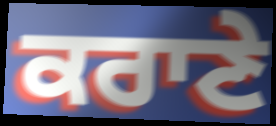
ਕਰਾਣੇ